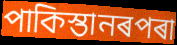
পাকিস্তানৰপৰা